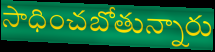
సాధించబోతున్నారు